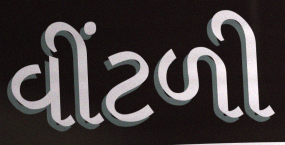
વીંટળી